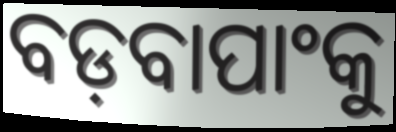
ବଡ଼ବାପାଂକୁ